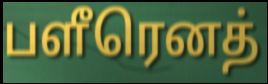
பளீரெனத்